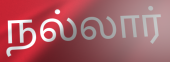
நல்லார்